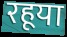
रहूया